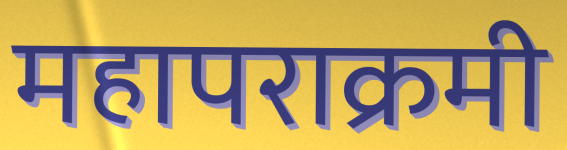
महापराक्रमी